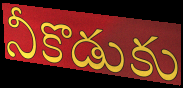
నీకొడుకు